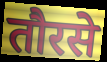
तौरसे